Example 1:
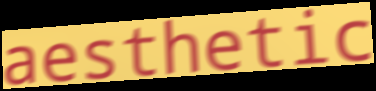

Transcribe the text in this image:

aesthetic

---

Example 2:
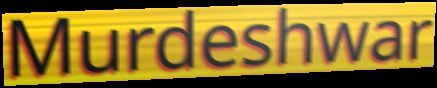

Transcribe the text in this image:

Murdeshwar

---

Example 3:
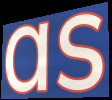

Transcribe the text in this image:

as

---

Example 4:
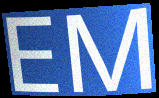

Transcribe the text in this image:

EM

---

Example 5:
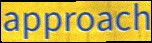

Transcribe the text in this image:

approach